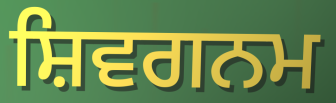
ਸ਼ਿਵਗਨਮ